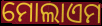
ମୋଲାଏମ